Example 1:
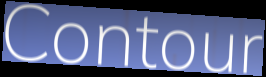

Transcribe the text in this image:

Contour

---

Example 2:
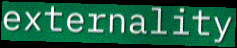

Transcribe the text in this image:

externality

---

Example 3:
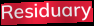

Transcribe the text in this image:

Residuary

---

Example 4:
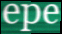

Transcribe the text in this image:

epe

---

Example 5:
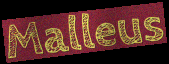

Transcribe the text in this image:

Malleus